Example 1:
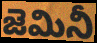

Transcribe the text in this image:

జెమినీ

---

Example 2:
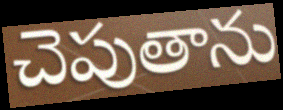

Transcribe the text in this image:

చెపుతాను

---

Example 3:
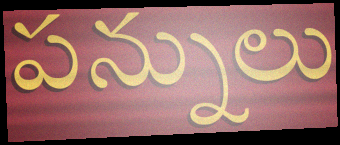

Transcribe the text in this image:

పన్నులు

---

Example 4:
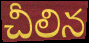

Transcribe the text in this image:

చీలిన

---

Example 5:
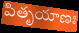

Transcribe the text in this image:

పితృయాణః